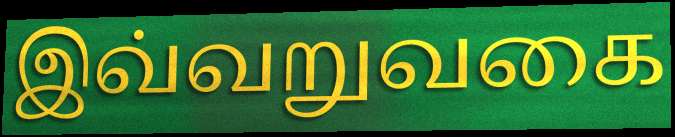
இவ்வறுவகை